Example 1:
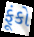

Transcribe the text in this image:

ફૂંકો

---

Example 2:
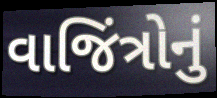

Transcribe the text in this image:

વાજિંત્રોનું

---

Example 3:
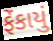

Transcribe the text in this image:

ફેંકાયું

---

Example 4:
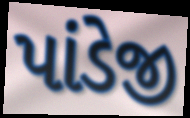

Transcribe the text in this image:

પાંડેજી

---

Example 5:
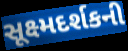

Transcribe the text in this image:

સૂક્ષ્મદર્શકની